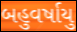
બહુવર્ષાયુ